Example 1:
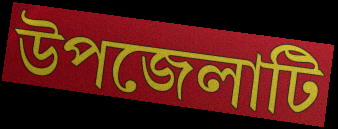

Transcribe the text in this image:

উপজেলাটি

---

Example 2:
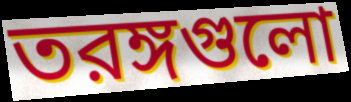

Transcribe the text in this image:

তরঙ্গগুলো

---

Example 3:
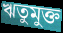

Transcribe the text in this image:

ঋতুমুক্ত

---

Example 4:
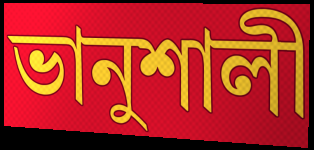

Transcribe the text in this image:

ভানুশালী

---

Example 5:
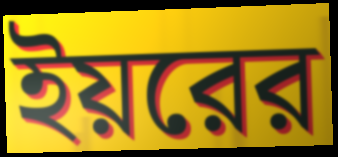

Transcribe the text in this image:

ইয়রের